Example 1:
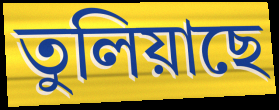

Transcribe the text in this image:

তুলিয়াছে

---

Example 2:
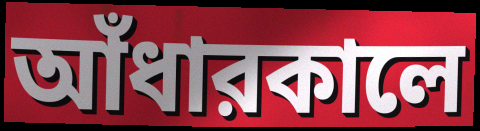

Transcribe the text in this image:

আঁধারকালে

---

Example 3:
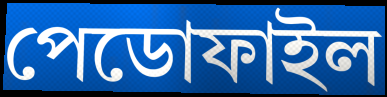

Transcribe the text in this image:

পেডোফাইল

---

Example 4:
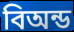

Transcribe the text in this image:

বিঅন্ড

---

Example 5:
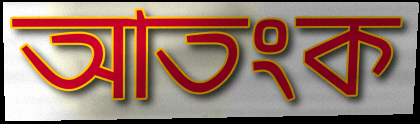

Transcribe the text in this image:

আতংক